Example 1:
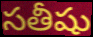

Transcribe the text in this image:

సతీషు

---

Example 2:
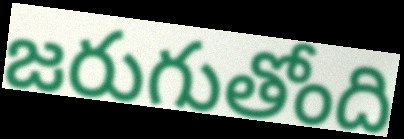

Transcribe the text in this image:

జరుగుతోంది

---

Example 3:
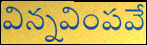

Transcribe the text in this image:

విన్నవింపవే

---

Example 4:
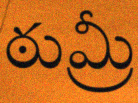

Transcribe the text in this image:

ఠుమ్రీ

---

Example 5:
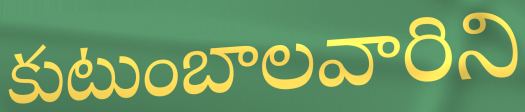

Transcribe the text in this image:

కుటుంబాలవారిని